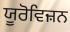
ਯੂਰੋਵਿਜ਼ਨ